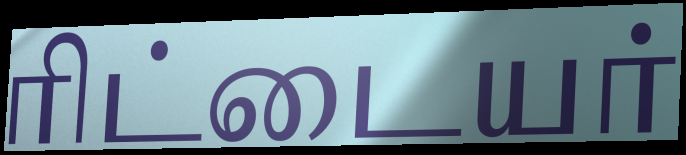
ரிட்டையர்